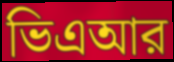
ভিএআর